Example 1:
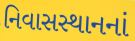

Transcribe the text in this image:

નિવાસસ્થાનનાં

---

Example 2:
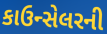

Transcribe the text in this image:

કાઉન્સેલરની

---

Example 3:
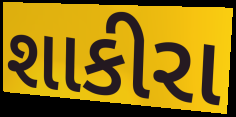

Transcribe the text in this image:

શાકીરા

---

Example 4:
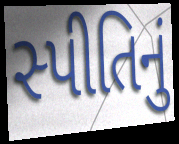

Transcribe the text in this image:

સ્પીતિનું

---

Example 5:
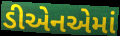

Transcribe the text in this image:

ડીએનએમાં